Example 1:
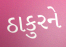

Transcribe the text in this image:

ઠાકુરને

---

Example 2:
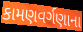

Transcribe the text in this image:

કામણવર્ગણાના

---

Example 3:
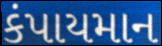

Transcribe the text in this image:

કંપાયમાન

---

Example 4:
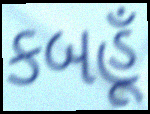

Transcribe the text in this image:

કબહૂઁ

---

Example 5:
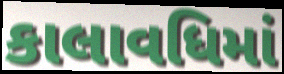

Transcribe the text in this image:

કાલાવધિમાં